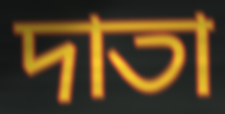
দাতা